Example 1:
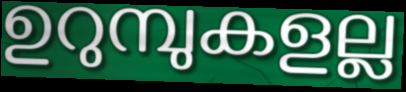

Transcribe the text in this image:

ഉറുമ്പുകളല്ല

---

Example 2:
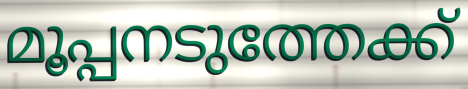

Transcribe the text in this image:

മൂപ്പനടുത്തേക്ക്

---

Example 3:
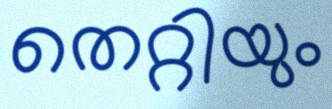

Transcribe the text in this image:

തെറ്റിയും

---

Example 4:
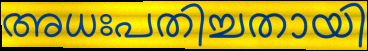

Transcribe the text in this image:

അധഃപതിച്ചതായി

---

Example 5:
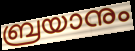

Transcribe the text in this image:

ബ്രയാനും